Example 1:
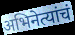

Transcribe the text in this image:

अभिनेत्यांचं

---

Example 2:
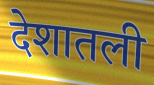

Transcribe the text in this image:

देशातली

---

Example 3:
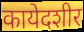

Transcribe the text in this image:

कायेदशीर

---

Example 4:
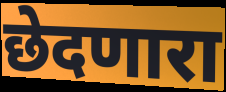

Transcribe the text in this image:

छेदणारा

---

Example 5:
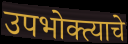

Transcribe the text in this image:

उपभोक्त्याचे